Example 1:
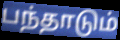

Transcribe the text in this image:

பந்தாடும்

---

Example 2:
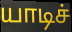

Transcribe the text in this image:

யாடிச்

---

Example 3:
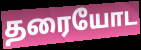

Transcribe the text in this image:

தரையோட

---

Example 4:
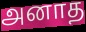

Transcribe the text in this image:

அனாத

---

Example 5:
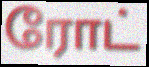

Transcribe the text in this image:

ரோட்